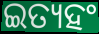
ଇତ୍ୟହଂ